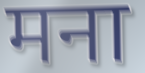
मना